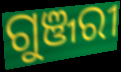
ଗୁଞ୍ଜରୀ